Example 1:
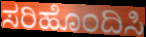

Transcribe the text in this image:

ಸರಿಹೊಂದಿಸಿ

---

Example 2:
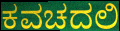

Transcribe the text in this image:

ಕವಚದಲಿ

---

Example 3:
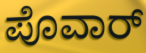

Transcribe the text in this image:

ಪೊವಾರ್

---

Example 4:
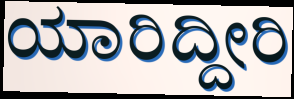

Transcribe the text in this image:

ಯಾರಿದ್ದೀರಿ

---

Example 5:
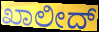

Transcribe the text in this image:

ಖಾಲೀದ್